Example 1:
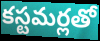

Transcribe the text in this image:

కస్టమర్లతో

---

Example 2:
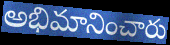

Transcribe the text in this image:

అభిమానించారు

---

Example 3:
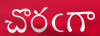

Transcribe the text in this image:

చొరఁగా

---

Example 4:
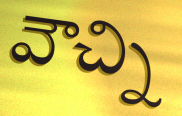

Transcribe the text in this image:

వౌచ్ని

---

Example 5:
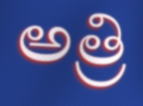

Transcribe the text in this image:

అత్రి